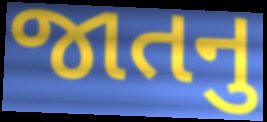
જાતનુ